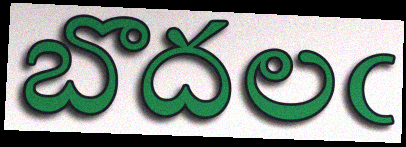
బొదలఁ